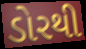
ડોરથી